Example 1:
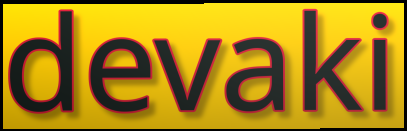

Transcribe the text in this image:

devaki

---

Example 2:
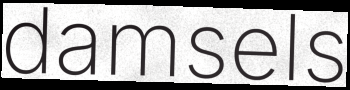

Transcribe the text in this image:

damsels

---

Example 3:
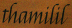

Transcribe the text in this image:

thamilil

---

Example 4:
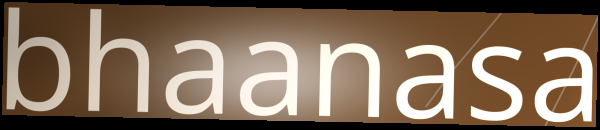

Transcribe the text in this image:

bhaanasa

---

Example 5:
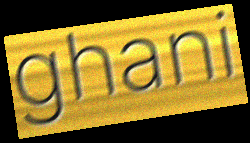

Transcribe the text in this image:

ghani